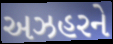
અઝહરને